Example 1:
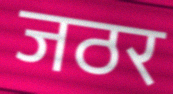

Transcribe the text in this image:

जठर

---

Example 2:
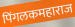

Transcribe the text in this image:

पिंगलकमहाराज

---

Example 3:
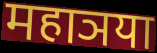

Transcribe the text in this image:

महाञया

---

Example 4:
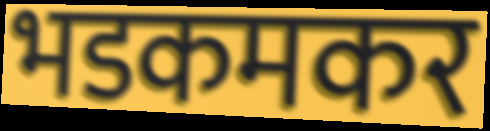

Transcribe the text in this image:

भडकमकर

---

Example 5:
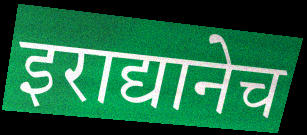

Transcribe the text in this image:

इराद्यानेच